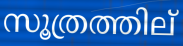
സൂത്രത്തില്